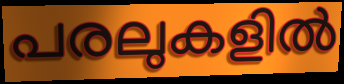
പരലുകളിൽ